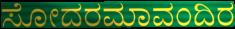
ಸೋದರಮಾವಂದಿರ